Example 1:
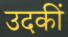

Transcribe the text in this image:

उदकीं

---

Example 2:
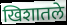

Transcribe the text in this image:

खिशातले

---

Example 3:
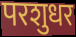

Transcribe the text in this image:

परशुधर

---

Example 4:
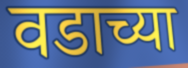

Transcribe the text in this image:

वडाच्या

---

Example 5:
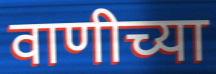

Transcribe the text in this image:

वाणीच्या